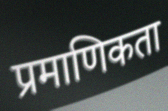
प्रमाणिकता